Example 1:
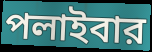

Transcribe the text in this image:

পলাইবার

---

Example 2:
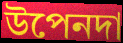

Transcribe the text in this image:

উপেনদা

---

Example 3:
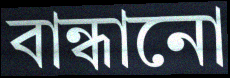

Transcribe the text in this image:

বান্ধানো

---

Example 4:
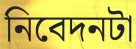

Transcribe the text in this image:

নিবেদনটা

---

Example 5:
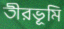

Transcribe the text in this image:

তীরভূমি